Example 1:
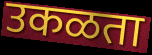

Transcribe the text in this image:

उकळता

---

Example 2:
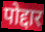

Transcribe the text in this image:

पोद्दार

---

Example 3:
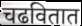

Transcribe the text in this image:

चढवितात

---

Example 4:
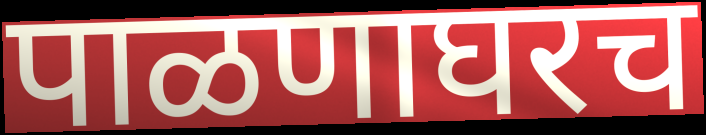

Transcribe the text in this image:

पाळणाघरच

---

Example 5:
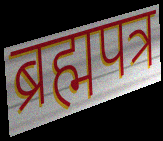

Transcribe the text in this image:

ब्रह्मपत्र